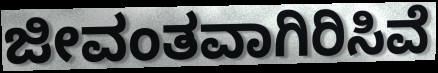
ಜೀವಂತವಾಗಿರಿಸಿವೆ